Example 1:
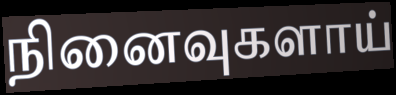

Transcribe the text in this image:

நினைவுகளாய்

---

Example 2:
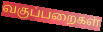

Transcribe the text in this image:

வகுப்பறைகள்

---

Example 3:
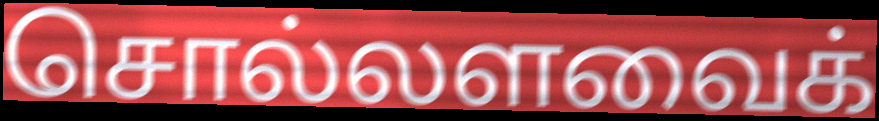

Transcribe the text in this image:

சொல்லளவைக்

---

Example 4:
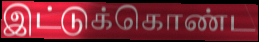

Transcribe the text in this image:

இட்டுக்கொண்ட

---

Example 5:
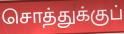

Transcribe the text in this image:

சொத்துக்குப்